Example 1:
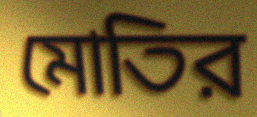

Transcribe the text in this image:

মোতির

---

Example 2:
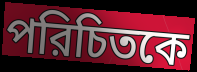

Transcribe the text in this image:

পরিচিতকে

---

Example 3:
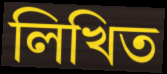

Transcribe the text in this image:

লিখিত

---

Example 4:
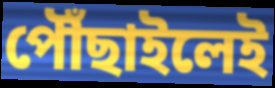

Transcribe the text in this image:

পৌঁছাইলেই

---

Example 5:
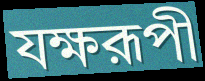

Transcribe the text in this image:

যক্ষরূপী